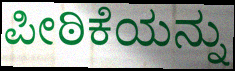
ಪೀಠಿಕೆಯನ್ನು